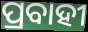
ପ୍ରବାହୀ